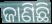
ଜାଣିଛି